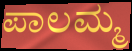
ಪಾಲಮ್ಮ